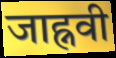
जाह्नवी